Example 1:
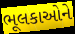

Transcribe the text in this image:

ભૂલકાઓને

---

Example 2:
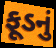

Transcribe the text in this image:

ફૂડનું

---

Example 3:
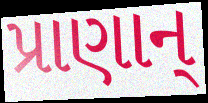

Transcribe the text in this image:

પ્રાણાન્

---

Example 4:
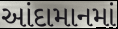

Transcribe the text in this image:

આંદામાનમાં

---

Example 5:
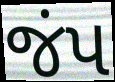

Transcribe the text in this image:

જંપ